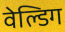
वेल्डिग